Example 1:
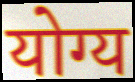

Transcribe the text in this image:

योग्य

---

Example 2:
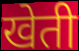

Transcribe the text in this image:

खेती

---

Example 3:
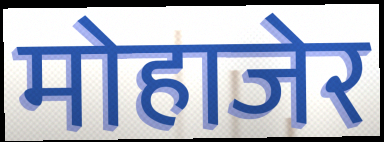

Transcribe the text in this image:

मोहाजेर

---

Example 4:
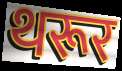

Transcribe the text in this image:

थरूर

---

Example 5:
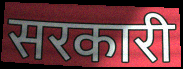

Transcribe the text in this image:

सरकारी